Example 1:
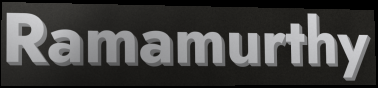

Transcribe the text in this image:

Ramamurthy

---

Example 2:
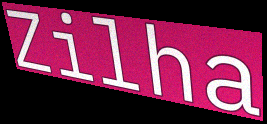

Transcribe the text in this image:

Zilha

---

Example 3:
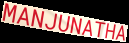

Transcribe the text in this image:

MANJUNATHA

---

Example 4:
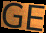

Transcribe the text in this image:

GE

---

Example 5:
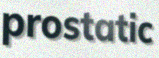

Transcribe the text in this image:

prostatic